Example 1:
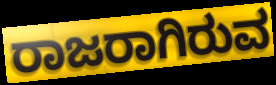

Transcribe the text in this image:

ರಾಜರಾಗಿರುವ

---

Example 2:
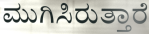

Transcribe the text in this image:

ಮುಗಿಸಿರುತ್ತಾರೆ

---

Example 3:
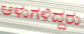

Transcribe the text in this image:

ಆಳುಗಳಿದ್ದರು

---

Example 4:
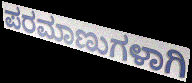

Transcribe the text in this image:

ಪರಮಾಣುಗಳಾಗಿ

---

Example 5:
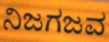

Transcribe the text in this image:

ನಿಜಗಜವ